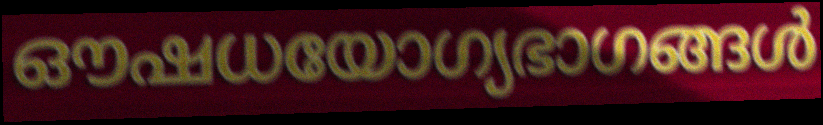
ഔഷധയോഗ്യഭാഗങ്ങൾ